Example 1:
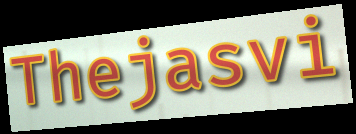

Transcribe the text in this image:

Thejasvi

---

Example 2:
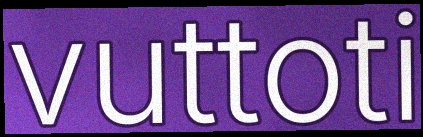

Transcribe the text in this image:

vuttoti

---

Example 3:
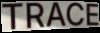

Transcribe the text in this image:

TRACE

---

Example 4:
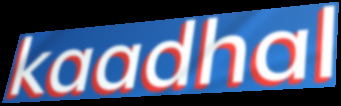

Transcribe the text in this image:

kaadhal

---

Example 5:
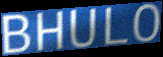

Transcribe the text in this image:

BHULO